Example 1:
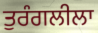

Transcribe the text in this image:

ਤੁਰੰਗਲੀਲਾ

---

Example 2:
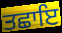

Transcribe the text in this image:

ਤਛਾਇ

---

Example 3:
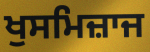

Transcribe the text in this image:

ਖੁਸਮਿਜ਼ਾਜ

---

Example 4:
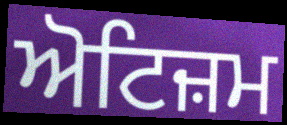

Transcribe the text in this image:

ਅੋਟਿਜ਼ਮ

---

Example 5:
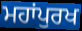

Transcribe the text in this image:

ਮਹਾਂਪੁਰਖ